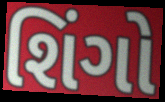
શિંગો